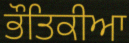
ਭੌਤਿਕੀਆ